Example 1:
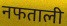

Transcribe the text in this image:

नफताली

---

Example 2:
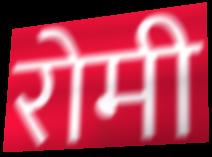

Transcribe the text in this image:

रोमी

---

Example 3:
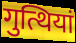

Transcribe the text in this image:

गुत्थियां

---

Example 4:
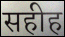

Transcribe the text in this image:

सहीह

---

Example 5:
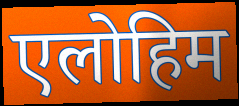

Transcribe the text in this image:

एलोहिम